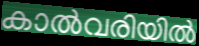
കാൽവരിയിൽ